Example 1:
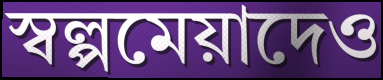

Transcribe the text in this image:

স্বল্পমেয়াদেও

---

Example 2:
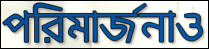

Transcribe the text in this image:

পরিমার্জনাও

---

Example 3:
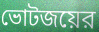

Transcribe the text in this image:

ভোটজয়ের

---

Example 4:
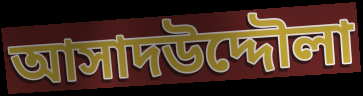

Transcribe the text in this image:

আসাদউদ্দৌলা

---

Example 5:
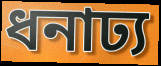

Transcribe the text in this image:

ধনাঢ্য